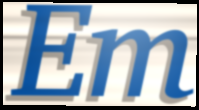
Em